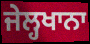
ਜੇਲ੍ਹਖਾਨਾ